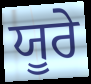
ਯੂਰੇ